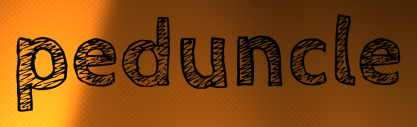
peduncle